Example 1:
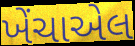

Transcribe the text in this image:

ખેંચાએલ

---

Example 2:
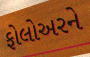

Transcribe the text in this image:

ફોલોઅરને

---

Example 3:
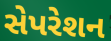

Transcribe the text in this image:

સેપરેશન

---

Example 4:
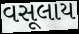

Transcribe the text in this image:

વસૂલાય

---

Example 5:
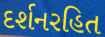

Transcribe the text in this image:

દર્શનરહિત